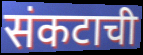
संकटाची